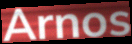
Arnos